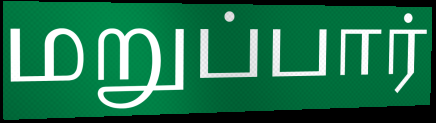
மறுப்பார்